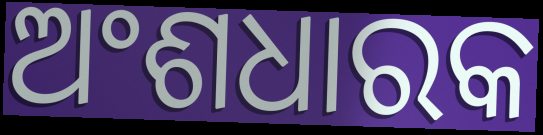
ଅଂଶଧାରକ